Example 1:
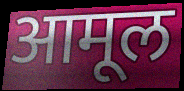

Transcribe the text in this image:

आमूल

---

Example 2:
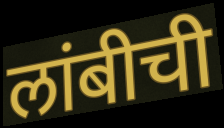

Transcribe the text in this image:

लांबीची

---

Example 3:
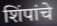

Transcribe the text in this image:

शिंपांचे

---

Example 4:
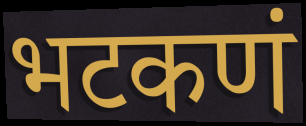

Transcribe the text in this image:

भटकणं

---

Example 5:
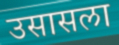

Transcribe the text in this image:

उसासला